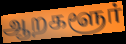
ஆறகளூர்